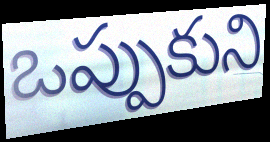
ఒప్పుకుని